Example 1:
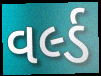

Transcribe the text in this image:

વર્લ્ડ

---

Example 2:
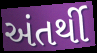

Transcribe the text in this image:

અંતર્થી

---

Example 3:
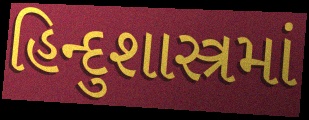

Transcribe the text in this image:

હિન્દુશાસ્ત્રમાં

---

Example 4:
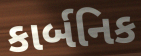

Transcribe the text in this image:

કાર્બનિક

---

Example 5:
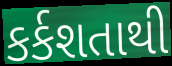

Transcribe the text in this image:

કર્કશતાથી